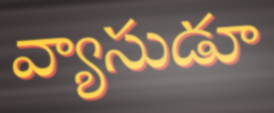
వ్యాసుడూ